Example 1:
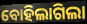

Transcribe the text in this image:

ବୋହିଲାଗିଲା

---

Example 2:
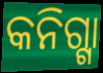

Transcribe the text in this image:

କନିଗ୍ଗା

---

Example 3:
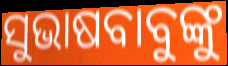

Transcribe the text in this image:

ସୁଭାଷବାବୁଙ୍କୁ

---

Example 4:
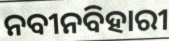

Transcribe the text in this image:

ନବୀନବିହାରୀ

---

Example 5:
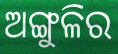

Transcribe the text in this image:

ଅଙ୍ଗୁଳିର